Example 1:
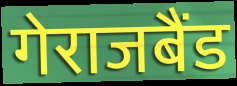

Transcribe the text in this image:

गेराजबैंड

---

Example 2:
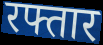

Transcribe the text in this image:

रफ्तार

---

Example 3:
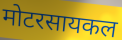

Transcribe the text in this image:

मोटरसायकल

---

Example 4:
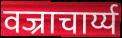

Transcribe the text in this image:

वज्राचार्य्य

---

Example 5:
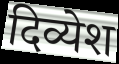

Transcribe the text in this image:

दिव्येश